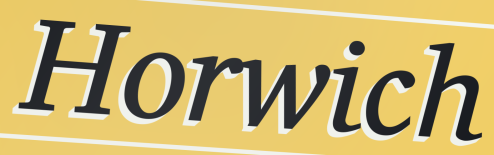
Horwich